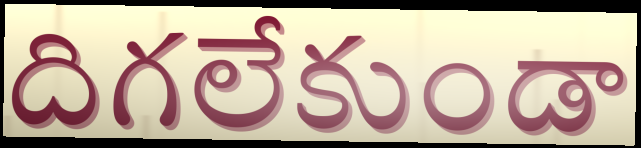
దిగలేకుండా